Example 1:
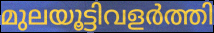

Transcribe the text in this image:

മുലയൂട്ടിവളർത്തി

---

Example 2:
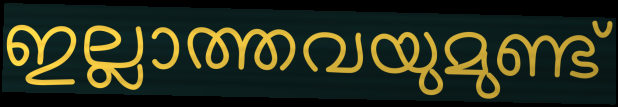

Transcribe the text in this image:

ഇല്ലാത്തവയുമുണ്ട്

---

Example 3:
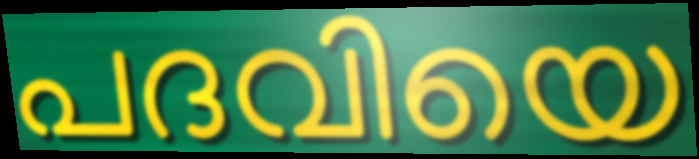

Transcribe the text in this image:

പദവിയെ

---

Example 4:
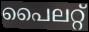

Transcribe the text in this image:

പൈലറ്റ്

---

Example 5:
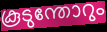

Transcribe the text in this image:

കൂടുന്തോറും